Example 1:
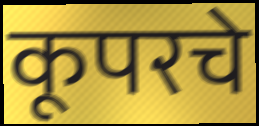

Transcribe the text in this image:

कूपरचे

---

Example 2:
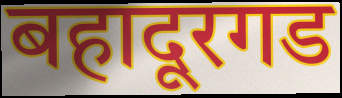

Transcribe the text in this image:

बहादूरगड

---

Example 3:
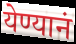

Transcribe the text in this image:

येण्यानं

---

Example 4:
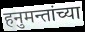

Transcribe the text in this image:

हनुमन्तांच्या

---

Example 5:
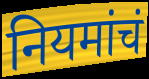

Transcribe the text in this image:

नियमांचं